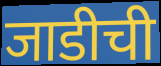
जाडीची